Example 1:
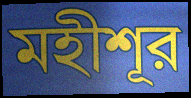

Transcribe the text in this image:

মহীশূর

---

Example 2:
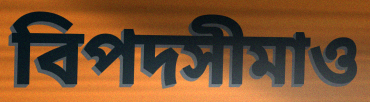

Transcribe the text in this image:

বিপদসীমাও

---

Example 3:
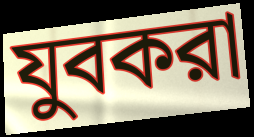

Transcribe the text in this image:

যুবকরা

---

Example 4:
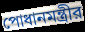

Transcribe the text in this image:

পোধানমন্ত্রীর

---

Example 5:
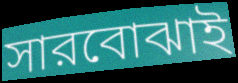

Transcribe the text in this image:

সারবোঝাই